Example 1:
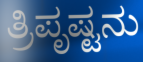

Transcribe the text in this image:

ತ್ರಿಪೃಷ್ಟನು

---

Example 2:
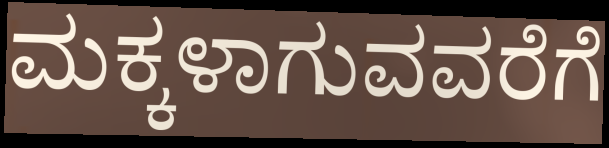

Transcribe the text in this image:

ಮಕ್ಕಳಾಗುವವರೆಗೆ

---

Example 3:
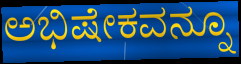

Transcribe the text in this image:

ಅಭಿಷೇಕವನ್ನೂ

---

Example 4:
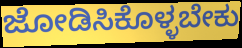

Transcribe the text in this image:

ಜೋಡಿಸಿಕೊಳ್ಳಬೇಕು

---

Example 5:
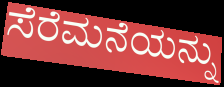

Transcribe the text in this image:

ಸೆರೆಮನೆಯನ್ನು